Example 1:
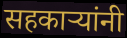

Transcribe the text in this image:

सहकाऱ्यांनी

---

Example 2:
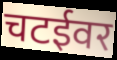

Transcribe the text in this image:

चटईवर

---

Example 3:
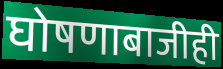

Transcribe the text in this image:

घोषणाबाजीही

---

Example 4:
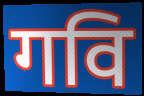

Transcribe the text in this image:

गवि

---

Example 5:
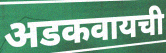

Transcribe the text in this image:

अडकवायची